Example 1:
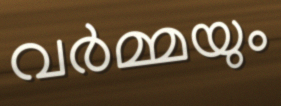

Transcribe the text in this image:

വർമ്മയും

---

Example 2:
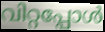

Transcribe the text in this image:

വിറ്റപ്പോൾ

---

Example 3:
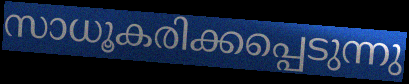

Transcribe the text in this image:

സാധൂകരിക്കപ്പെടുന്നു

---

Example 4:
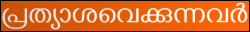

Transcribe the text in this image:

പ്രത്യാശവെക്കുന്നവർ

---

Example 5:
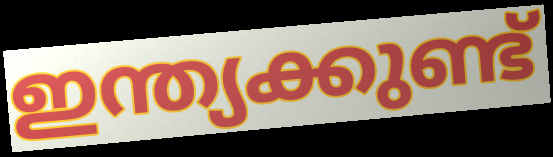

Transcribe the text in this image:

ഇന്ത്യക്കുണ്ട്